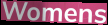
Womens